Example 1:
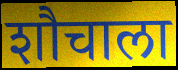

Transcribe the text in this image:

शौचाला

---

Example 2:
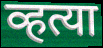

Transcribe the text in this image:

व्हत्या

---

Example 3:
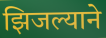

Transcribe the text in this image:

झिजल्याने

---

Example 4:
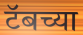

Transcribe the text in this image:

टॅबच्या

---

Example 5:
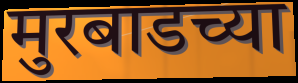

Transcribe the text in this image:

मुरबाडच्या